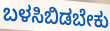
ಬಳಸಿಬಿಡಬೇಕು